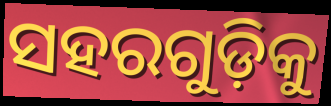
ସହରଗୁଡ଼ିକୁ